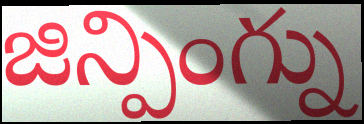
జిన్పింగ్ను